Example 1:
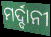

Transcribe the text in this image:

ମର୍ଦ୍ଦାନୀ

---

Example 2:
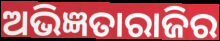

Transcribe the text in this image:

ଅଭିଜ୍ଞତାରାଜିର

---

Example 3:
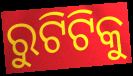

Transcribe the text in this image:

ରୁଟିଟିକୁ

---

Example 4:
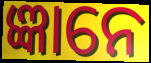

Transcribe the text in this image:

ଜ୍ଞାନେ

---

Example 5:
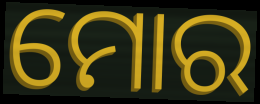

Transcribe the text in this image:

ମୋର